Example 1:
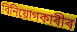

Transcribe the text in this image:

বিনিয়োগকাৰীৰ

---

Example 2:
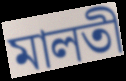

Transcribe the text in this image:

মালতী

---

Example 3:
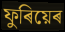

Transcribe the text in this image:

ফুৰিয়েৰ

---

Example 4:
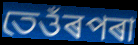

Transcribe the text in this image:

তেওঁৰপৰা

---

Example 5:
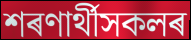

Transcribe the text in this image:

শৰণাৰ্থীসকলৰ